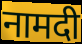
नामदी